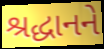
શ્રદ્ધાનને